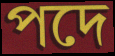
পদে